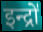
इन्द्रो॑